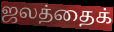
ஜலத்தைக்